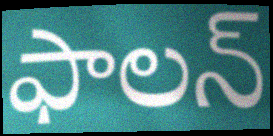
ఫాలన్